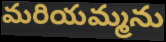
మరియమ్మను